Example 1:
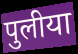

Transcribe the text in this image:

पुलीया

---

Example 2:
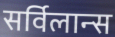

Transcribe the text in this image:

सर्विलान्स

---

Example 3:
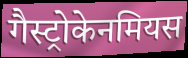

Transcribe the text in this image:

गैस्ट्रोकेनमियस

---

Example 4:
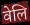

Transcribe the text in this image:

वेलि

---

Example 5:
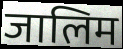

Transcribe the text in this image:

जालिम